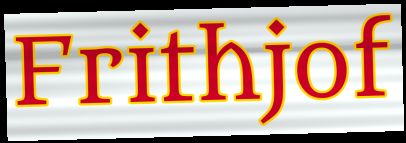
Frithjof